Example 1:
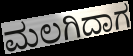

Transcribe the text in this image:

ಮಲಗಿದಾಗ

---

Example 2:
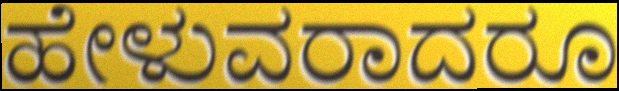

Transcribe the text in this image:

ಹೇಳುವರಾದರೂ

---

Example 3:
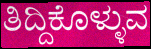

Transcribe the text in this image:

ತಿದ್ದಿಕೊಳ್ಳುವ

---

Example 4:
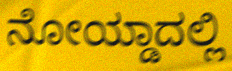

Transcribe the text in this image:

ನೋಯ್ಡಾದಲ್ಲಿ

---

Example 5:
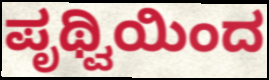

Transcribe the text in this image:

ಪೃಥ್ವಿಯಿಂದ